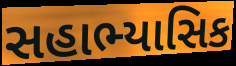
સહાભ્યાસિક